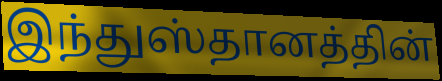
இந்துஸ்தானத்தின்